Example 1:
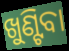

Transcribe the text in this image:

ଖୁଣ୍ଟିବା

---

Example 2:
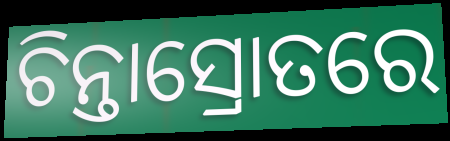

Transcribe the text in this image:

ଚିନ୍ତାସ୍ରୋତରେ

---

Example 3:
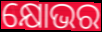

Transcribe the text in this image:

କ୍ଷୋଭର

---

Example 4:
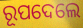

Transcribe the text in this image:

ରୂପଦେଲେ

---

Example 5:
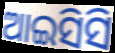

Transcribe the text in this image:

ଆଇସିସି